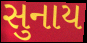
સુનાય